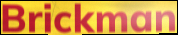
Brickman